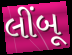
લીંબૂ